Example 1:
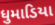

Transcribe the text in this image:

ધુમાડિયા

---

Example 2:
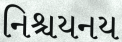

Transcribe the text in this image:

નિશ્ચયનય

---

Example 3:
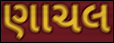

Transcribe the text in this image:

ણાચલ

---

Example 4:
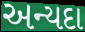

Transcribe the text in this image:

અન્યદા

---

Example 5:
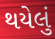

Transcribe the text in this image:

થયેલું